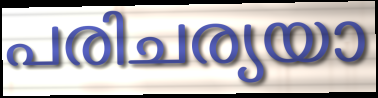
പരിചര്യയാ